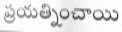
ప్రయత్నించాయి